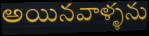
అయినవాళ్ళను